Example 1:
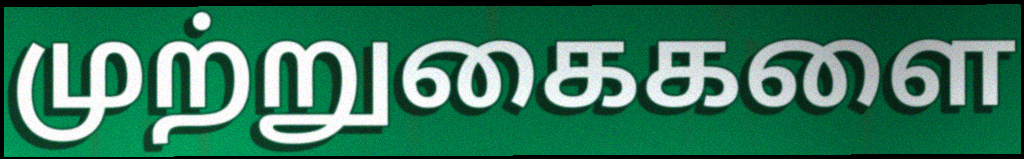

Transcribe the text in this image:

முற்றுகைகளை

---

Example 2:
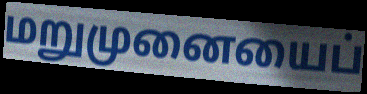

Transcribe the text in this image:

மறுமுனையைப்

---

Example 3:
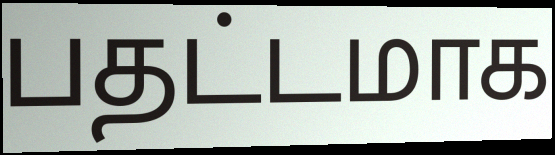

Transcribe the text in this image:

பதட்டமாக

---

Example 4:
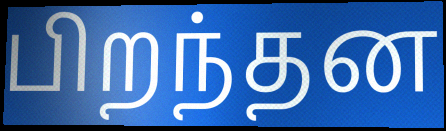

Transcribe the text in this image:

பிறந்தன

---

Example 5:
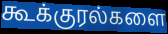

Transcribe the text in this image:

கூக்குரல்களை